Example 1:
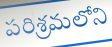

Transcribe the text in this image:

పరిశ్రమలోని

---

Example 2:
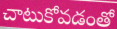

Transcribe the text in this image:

చాటుకోవడంతో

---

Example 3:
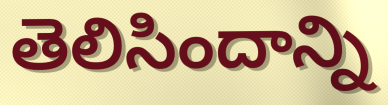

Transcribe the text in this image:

తెలిసిందాన్ని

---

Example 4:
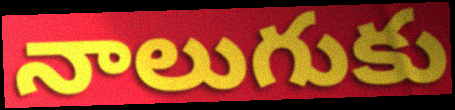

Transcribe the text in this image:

నాలుగుకు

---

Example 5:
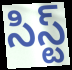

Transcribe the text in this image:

సిస్ట్